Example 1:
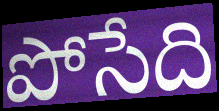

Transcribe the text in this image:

పోసేది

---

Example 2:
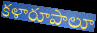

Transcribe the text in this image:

కళారూపాలూ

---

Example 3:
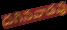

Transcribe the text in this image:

దగినవాడవు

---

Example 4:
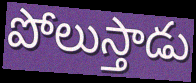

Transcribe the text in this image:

పోలుస్తాడు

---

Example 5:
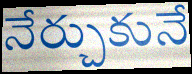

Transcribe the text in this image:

నేర్చుకునే